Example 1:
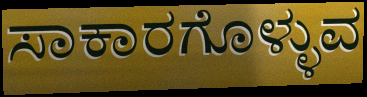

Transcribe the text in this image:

ಸಾಕಾರಗೊಳ್ಳುವ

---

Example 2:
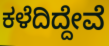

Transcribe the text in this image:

ಕಳೆದಿದ್ದೇವೆ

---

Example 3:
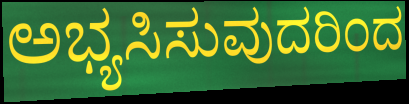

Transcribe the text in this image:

ಅಭ್ಯಸಿಸುವುದರಿಂದ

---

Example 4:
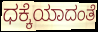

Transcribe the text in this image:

ಧಕ್ಕೆಯಾದಂತೆ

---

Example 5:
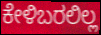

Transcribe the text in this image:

ಕೇಳಿಬರಲಿಲ್ಲ